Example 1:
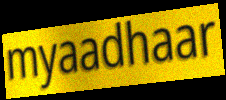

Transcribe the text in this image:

myaadhaar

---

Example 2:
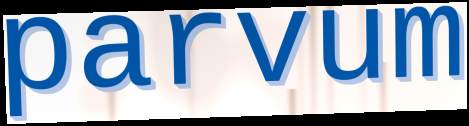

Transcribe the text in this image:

parvum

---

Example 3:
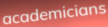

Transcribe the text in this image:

academicians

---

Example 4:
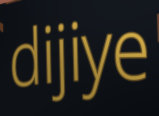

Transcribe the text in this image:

dijiye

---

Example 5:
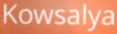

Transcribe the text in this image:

Kowsalya